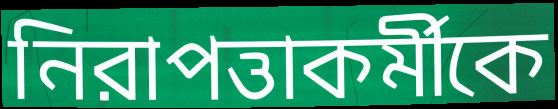
নিরাপত্তাকর্মীকে